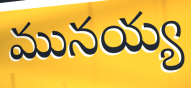
మునయ్య